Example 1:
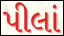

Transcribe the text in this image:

પીલાં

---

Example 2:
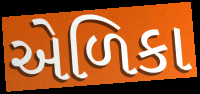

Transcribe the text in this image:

એળિકા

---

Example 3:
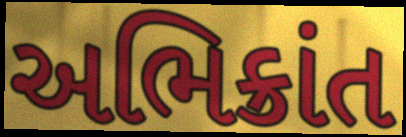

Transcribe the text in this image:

અભિક્રાંત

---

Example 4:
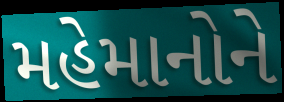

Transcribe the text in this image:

મહેમાનોને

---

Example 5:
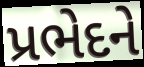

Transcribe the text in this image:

પ્રભેદને